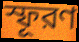
স্ফূরণ